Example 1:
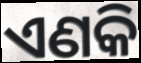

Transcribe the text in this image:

ଏଣକି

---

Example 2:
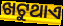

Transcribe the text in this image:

ଖଟୁଥାଏ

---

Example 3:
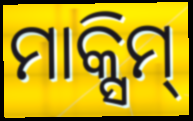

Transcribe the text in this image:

ମାକ୍ସିମ୍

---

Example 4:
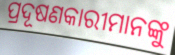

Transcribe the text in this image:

ପ୍ରଦୂଷଣକାରୀମାନଙ୍କୁ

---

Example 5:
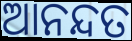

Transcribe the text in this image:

ଆନନ୍ଦତ